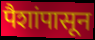
पैशांपासून